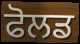
ਫੋਲਡ